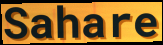
Sahare